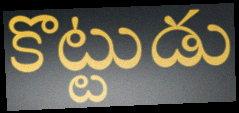
కొట్టుడు